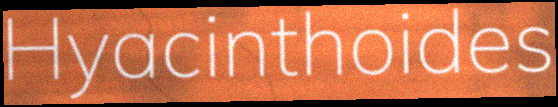
Hyacinthoides